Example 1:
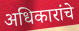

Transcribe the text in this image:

अधिकारांचे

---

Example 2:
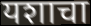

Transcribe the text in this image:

यशाचा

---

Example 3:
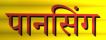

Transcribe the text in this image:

पानसिंग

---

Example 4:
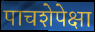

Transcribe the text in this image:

पाचशेपेक्षा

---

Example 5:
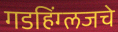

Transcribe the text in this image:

गडहिंग्लजचे